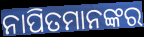
ନାପିତମାନଙ୍କର